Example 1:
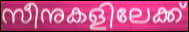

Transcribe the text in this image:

സീനുകളിലേക്ക്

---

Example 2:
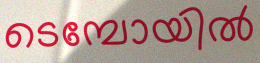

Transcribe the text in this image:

ടെമ്പോയിൽ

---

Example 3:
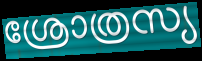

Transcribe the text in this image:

ശ്രോത്രസ്യ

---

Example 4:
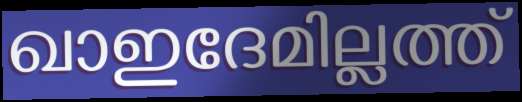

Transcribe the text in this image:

ഖാഇദേമില്ലത്ത്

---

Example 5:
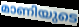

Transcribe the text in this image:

മാണിയുടെ